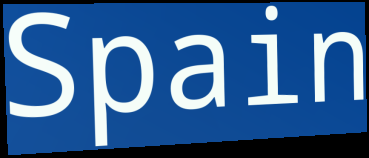
Spain